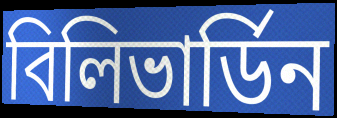
বিলিভার্ডিন